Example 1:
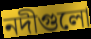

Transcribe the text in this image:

নদীগুলো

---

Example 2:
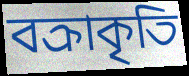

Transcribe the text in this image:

বক্রাকৃতি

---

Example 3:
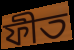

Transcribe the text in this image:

ফীত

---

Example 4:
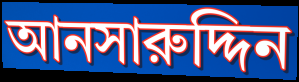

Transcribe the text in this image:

আনসারুদ্দিন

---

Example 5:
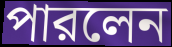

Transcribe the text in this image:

পারলেন